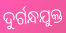
ଦୁର୍ଗନ୍ଧଯୁକ୍ତ